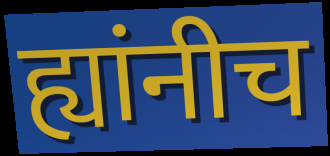
ह्यांनीच